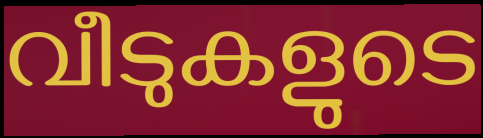
വീടുകളുടെ